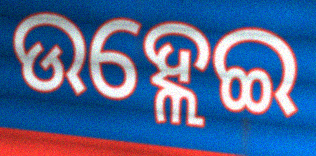
ଉହ୍ଲେଇ